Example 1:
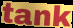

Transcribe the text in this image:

tank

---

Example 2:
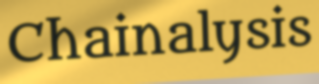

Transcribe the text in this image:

Chainalysis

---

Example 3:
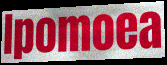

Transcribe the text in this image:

Ipomoea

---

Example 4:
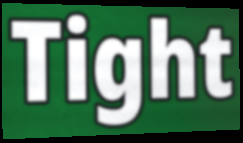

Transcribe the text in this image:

Tight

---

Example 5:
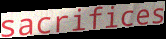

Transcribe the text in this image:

sacrifices